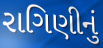
રાગિણીનું